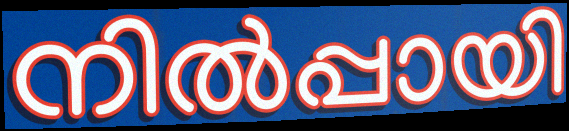
നിൽപ്പായി